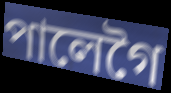
পালেগৈ